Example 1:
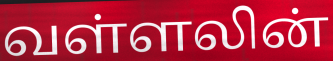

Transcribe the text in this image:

வள்ளலின்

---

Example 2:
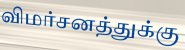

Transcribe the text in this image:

விமர்சனத்துக்கு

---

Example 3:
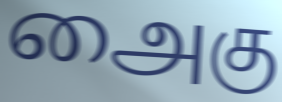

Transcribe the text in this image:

அைகு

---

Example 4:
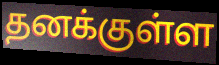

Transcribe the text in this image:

தனக்குள்ள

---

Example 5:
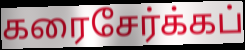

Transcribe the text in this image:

கரைசேர்க்கப்